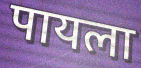
पायला